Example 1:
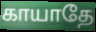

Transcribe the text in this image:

காயாதே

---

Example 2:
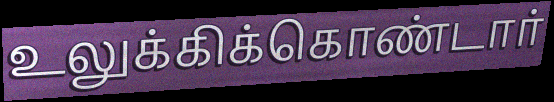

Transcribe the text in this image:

உலுக்கிக்கொண்டார்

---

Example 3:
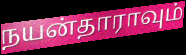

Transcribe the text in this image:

நயன்தாராவும்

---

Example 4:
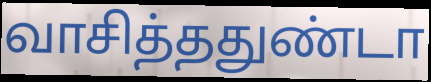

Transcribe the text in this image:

வாசித்ததுண்டா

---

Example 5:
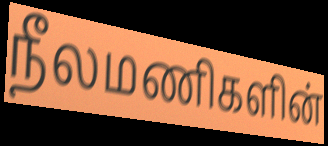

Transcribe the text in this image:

நீலமணிகளின்